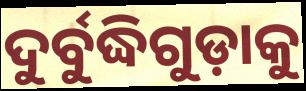
ଦୁର୍ବୁଦ୍ଧିଗୁଡ଼ାକୁ